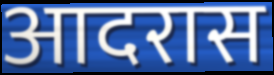
आदरास